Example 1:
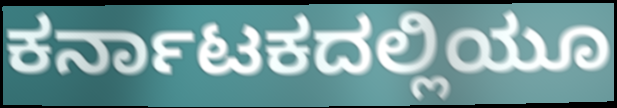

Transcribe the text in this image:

ಕರ್ನಾಟಕದಲ್ಲಿಯೂ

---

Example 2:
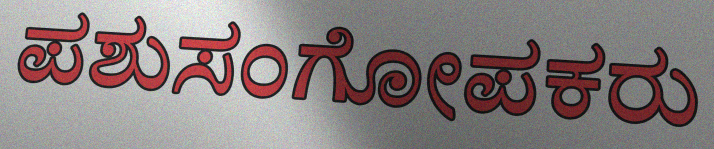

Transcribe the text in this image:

ಪಶುಸಂಗೋಪಕರು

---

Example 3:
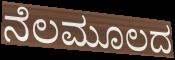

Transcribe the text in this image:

ನೆಲಮೂಲದ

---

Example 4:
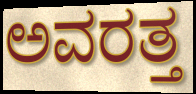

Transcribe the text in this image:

ಅವರತ್ತ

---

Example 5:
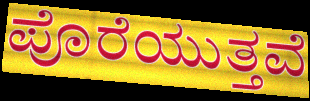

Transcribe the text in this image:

ಪೊರೆಯುತ್ತವೆ